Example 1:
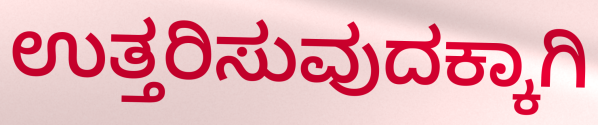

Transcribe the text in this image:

ಉತ್ತರಿಸುವುದಕ್ಕಾಗಿ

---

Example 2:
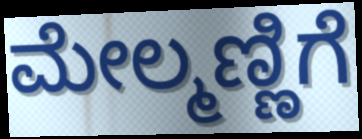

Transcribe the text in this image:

ಮೇಲ್ಮಣ್ಣಿಗೆ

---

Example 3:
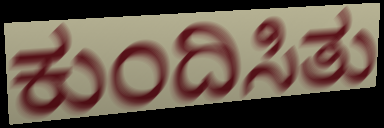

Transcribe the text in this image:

ಕುಂದಿಸಿತು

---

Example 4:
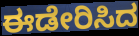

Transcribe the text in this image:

ಈಡೇರಿಸಿದ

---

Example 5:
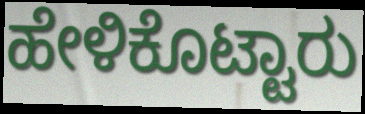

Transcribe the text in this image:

ಹೇಳಿಕೊಟ್ಟಾರು